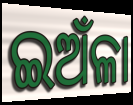
ଇଅଁଳା